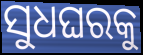
ସୁଧଘରକୁ